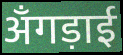
अँगड़ाई